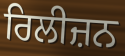
ਰਿਲੀਜ਼ਨ